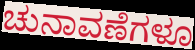
ಚುನಾವಣೆಗಳೂ